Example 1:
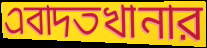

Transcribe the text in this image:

এবাদতখানার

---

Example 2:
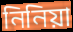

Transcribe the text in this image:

নিনিয়া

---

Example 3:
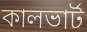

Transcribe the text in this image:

কালভার্ট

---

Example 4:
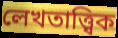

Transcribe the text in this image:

লেখতাত্ত্বিক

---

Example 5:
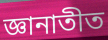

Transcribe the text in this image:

জ্ঞানাতীত